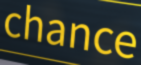
chance